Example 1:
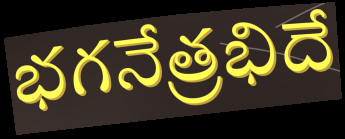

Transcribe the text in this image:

భగనేత్రభిదే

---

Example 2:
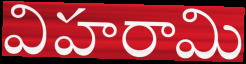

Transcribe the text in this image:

విహరామి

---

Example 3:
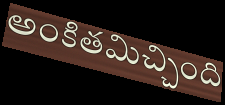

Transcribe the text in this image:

అంకితమిచ్చింది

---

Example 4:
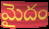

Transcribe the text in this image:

మైదం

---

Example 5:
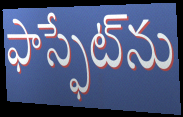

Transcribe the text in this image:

ఫాస్ఫేట్‌ను